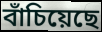
বাঁচিয়েছে